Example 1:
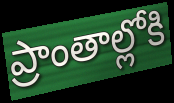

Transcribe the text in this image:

ప్రాంతాల్లోకి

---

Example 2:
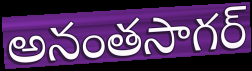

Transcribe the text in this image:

అనంతసాగర్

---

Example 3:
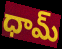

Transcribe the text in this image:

ధామ్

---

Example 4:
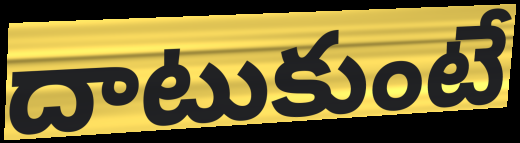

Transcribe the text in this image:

దాటుకుంటే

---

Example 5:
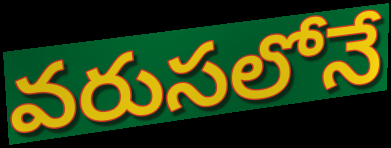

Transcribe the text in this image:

వరుసలోనే